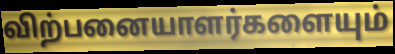
விற்பனையாளர்களையும்